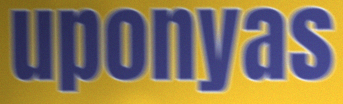
uponyas